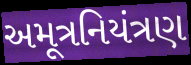
અમૂત્રનિયંત્રણ